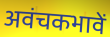
अवंचकभावें